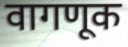
वागणूक